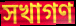
সখাগণ